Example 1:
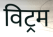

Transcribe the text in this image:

विट्रम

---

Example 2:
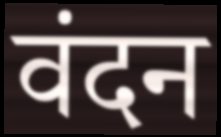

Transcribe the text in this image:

वंदन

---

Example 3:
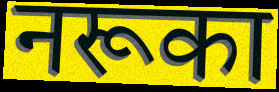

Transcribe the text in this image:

नरूका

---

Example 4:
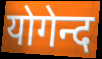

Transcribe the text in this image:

योगेन्द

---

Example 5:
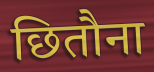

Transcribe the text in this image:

छितौना